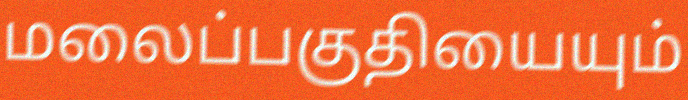
மலைப்பகுதியையும்